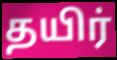
தயிர்